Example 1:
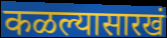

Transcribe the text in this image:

कळल्यासारखं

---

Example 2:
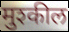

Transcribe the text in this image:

मुश्कील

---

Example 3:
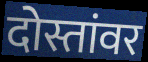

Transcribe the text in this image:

दोस्तांवर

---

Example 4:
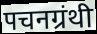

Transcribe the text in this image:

पचनग्रंथी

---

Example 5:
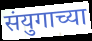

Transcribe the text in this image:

संयुगाच्या